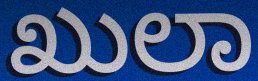
ಖುಲಾ